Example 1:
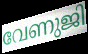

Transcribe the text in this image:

വേണുജി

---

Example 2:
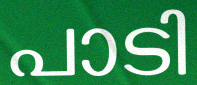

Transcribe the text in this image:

പാടി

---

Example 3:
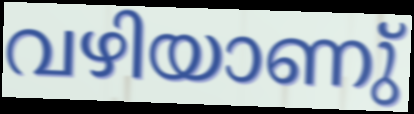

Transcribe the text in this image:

വഴിയാണു്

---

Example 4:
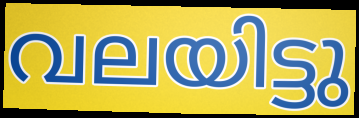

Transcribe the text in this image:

വലയിട്ടു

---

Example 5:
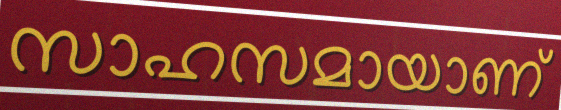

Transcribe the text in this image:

സാഹസമായാണ്